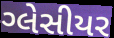
ગ્લેસીયર